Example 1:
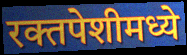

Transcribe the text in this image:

रक्तपेशीमध्ये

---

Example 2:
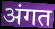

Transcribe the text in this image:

अंगत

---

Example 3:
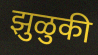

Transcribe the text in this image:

झुळुकी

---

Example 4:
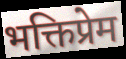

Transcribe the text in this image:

भक्तिप्रेम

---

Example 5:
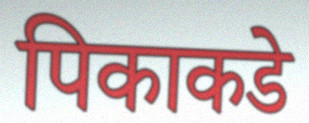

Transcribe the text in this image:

पिकाकडे